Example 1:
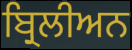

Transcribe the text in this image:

ਬ੍ਰਿਲੀਅਨ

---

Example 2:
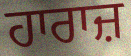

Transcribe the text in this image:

ਹਾਰਾਜ਼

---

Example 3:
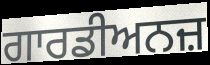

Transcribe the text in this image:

ਗਾਰਡੀਅਨਜ਼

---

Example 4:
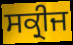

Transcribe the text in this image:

ਸਕ੍ਰੀਜ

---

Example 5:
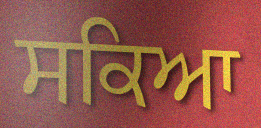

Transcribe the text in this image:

ਸਕਿਆ